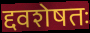
द्दवशेषतः